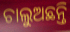
ଚାଲୁଅଛନ୍ତି